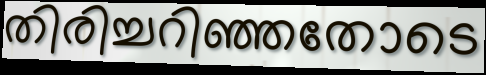
തിരിച്ചറിഞ്ഞതോടെ